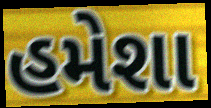
હમેશા